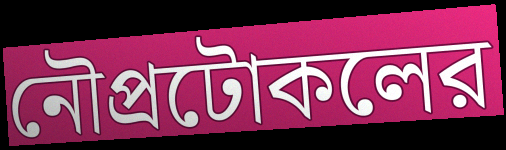
নৌপ্রটোকলের